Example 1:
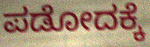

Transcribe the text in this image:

ಪಡೋದಕ್ಕೆ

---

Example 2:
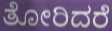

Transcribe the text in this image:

ತೋರಿದರೆ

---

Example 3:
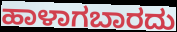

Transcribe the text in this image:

ಹಾಳಾಗಬಾರದು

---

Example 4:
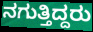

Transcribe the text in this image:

ನಗುತ್ತಿದ್ದರು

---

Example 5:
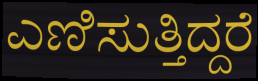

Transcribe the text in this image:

ಎಣಿಸುತ್ತಿದ್ದರೆ